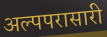
अल्पपरासारी